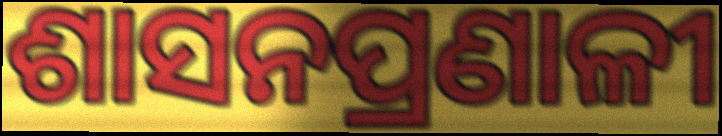
ଶାସନପ୍ରଣାଳୀ